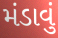
મંડાવું